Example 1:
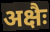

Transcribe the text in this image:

अक्षैः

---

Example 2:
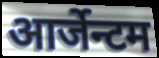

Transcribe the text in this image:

आर्जेन्टम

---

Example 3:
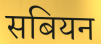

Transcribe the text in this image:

सबियन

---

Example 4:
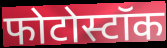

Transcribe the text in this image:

फोटोस्टॉक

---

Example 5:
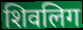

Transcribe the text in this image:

शिवलिग